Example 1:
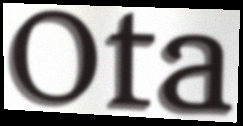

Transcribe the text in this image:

Ota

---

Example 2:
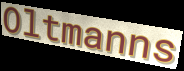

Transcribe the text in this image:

Oltmanns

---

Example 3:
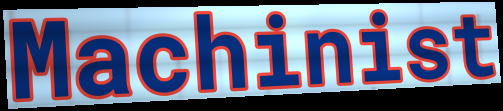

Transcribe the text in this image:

Machinist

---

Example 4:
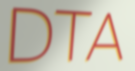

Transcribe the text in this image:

DTA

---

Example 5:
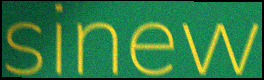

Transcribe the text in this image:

sinew